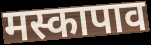
मस्कापाव